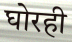
घोरही